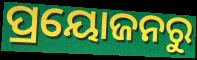
ପ୍ରୟୋଜନରୁ